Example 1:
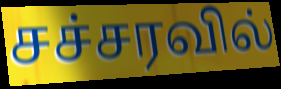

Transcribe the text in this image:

சச்சரவில்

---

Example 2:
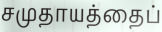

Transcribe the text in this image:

சமுதாயத்தைப்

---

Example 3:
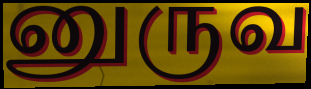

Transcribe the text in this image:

னுருவ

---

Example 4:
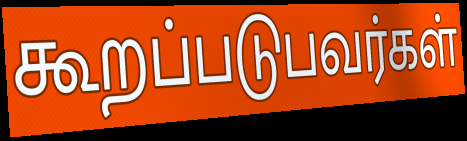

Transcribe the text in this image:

கூறப்படுபவர்கள்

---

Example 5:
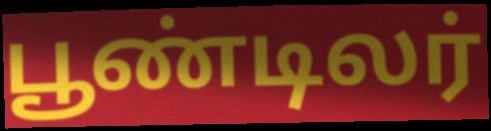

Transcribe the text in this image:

பூண்டிலர்